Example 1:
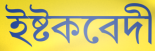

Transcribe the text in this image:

ইষ্টকবেদী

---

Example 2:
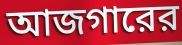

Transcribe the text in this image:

আজগারের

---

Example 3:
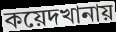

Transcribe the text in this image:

কয়েদখানায়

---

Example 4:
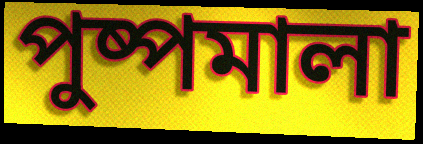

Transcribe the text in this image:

পুষ্পমালা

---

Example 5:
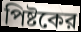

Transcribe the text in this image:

পিষ্টকের